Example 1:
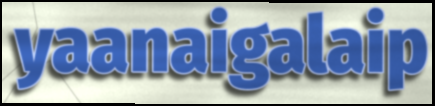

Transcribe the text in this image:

yaanaigalaip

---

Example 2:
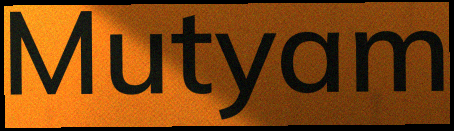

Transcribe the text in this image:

Mutyam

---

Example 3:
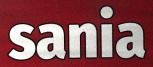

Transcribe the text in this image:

sania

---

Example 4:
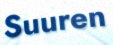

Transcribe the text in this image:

Suuren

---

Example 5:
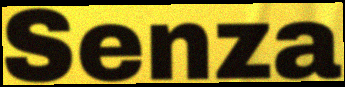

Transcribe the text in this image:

Senza